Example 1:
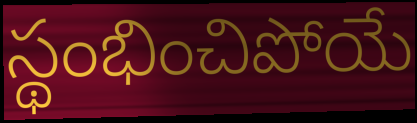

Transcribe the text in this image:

స్థంభించిపోయే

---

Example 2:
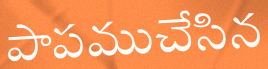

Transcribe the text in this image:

పాపముచేసిన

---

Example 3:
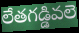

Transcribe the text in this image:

లేతగడ్డివలె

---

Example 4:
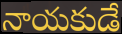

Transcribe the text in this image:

నాయకుడే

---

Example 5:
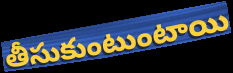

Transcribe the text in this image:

తీసుకుంటుంటాయి